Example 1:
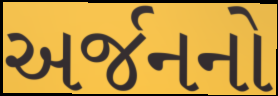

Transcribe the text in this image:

અર્જનનો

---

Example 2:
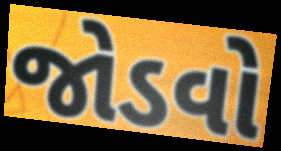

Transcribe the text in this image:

જોડવો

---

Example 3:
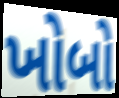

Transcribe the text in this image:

ખોબો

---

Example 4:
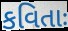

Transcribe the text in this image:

કવિતાઃ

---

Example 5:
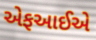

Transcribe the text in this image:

એફઆઈએ